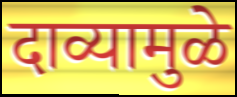
दाव्यामुळे